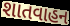
શાતવાહન